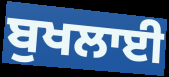
ਬੁਖਲਾਈ